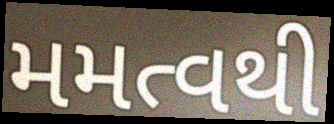
મમત્વથી